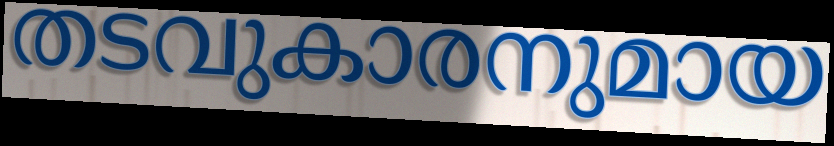
തടവുകാരനുമായ